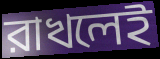
রাখলেই